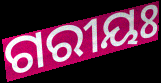
ଗରୀୟଃ